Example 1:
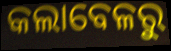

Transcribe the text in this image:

କଲାବେଳରୁ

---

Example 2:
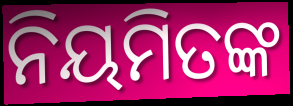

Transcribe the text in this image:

ନିୟମିତଙ୍କ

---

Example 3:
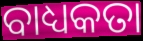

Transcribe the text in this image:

ବାଧ୍ୟକତା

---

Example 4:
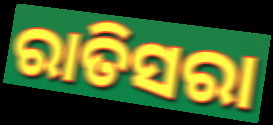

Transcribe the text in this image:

ରାତିସରା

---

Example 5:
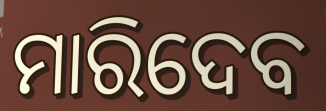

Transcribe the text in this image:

ମାରିଦେବ